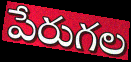
పేరుగల